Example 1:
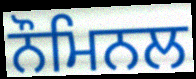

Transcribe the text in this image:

ਨੌਮਿਨਲ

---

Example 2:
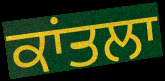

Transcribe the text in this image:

ਕਾਂਤਲਾ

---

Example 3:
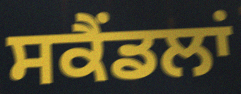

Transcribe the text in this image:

ਸਕੈਂਡਲਾਂ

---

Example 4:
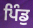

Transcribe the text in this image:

ਪਿੰਡੁ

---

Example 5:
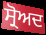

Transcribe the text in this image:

ਸ੍ਰੋਅਦ